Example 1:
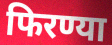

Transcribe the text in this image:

फिरण्या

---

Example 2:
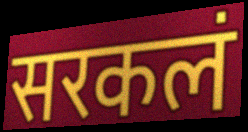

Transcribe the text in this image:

सरकलं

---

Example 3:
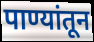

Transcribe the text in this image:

पाण्यांतून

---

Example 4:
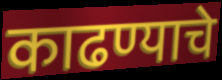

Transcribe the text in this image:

काढण्याचे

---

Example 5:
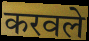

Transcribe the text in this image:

करवले